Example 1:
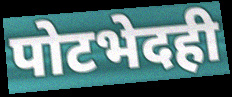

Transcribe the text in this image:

पोटभेदही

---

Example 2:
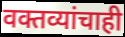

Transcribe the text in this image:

वक्तव्यांचाही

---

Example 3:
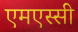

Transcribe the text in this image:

एमएस्सी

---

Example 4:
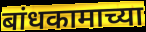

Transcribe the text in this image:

बांधकामाच्या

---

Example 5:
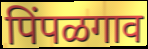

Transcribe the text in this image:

पिंपळगाव